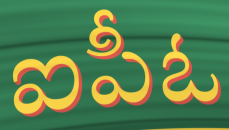
ఐపీఓ